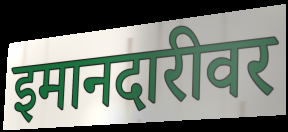
इमानदारीवर